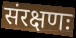
संरक्षणः